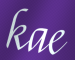
kae